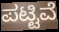
ಪಟ್ಟಿವೆ